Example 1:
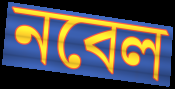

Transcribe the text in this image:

নবেল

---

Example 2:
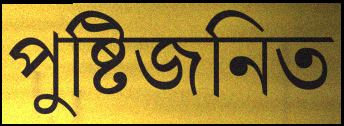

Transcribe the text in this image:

পুষ্টিজনিত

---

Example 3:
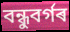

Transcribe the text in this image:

বন্ধুবৰ্গৰ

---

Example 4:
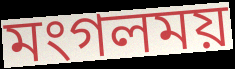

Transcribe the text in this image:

মংগলময়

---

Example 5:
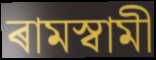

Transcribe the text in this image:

ৰামস্বামী